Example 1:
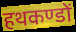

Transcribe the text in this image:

हथकण्डों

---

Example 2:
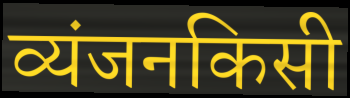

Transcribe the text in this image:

व्यंजनकिसी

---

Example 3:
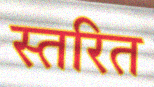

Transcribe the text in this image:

स्तरित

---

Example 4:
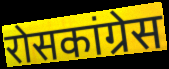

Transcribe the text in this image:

रोसकांग्रेस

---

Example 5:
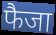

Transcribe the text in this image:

फैजा